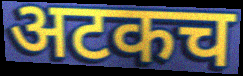
अटकच